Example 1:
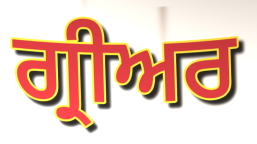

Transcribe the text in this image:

ਗ੍ਰੀਅਰ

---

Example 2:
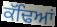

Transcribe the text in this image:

ਕੱਢਿਆਂ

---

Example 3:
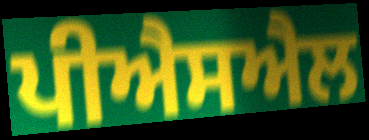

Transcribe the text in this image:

ਪੀਐਸਐਲ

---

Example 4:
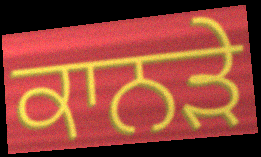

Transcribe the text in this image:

ਕਾਨੜੇ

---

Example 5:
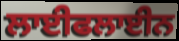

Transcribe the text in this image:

ਲਾਈਫਲਾਈਨ